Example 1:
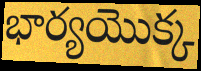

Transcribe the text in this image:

భార్యయొక్క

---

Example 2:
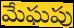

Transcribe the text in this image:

మేఘపు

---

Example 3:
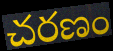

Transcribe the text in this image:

చరణం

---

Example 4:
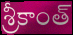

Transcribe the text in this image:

శ్రీకాంత్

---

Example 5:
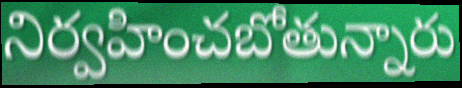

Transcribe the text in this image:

నిర్వహించబోతున్నారు